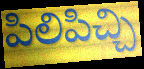
పిలిపిచ్చి